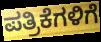
ಪತ್ರಿಕೆಗಳಿಗೆ